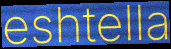
eshtella